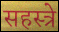
सहस्त्रे